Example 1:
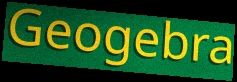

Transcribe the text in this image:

Geogebra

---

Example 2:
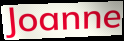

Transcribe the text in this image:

Joanne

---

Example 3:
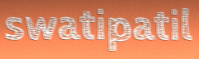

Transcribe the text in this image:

swatipatil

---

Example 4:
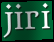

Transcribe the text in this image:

jiri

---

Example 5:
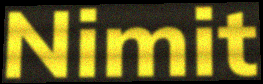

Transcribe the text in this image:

Nimit